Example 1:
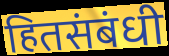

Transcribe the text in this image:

हितसंबंधी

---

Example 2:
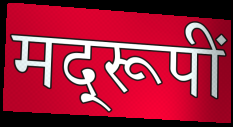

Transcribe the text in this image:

मद्‌रूपीं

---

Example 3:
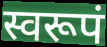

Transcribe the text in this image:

स्वरूपं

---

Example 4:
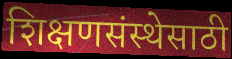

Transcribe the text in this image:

शिक्षणसंस्थेसाठी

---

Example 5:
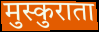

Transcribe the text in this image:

मुस्कुराता